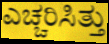
ಎಚ್ಚರಿಸಿತ್ತು